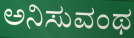
ಅನಿಸುವಂಥ